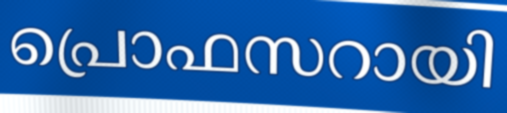
പ്രൊഫസറായി